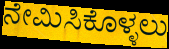
ನೇಮಿಸಿಕೊಳ್ಳಲು